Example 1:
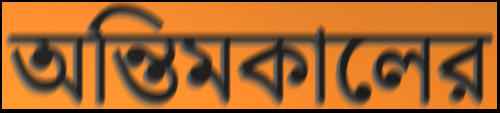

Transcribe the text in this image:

অন্তিমকালের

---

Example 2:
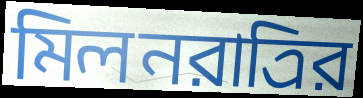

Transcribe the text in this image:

মিলনরাত্রির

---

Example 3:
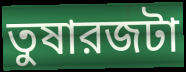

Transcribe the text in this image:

তুষারজটা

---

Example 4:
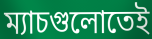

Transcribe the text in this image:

ম্যাচগুলোতেই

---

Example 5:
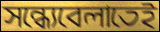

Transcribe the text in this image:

সন্ধ্যেবেলাতেই